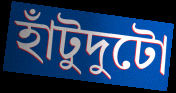
হাঁটুদুটো